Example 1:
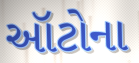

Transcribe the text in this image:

ઑટોના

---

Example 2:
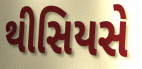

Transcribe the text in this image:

થીસિયસે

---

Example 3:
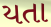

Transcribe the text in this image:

યતા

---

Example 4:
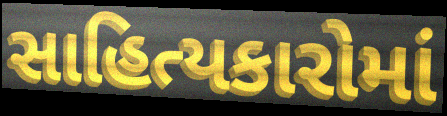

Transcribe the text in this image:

સાહિત્યકારોમાં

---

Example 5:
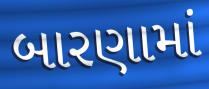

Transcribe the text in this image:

બારણામાં